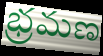
భ్రమణ